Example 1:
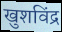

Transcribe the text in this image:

खुशविंद्र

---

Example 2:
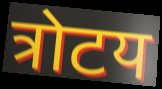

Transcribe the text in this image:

त्रोटय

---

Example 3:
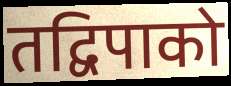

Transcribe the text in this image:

तद्विपाको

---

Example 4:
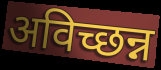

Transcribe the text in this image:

अविच्छन्न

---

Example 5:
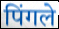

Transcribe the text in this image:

पिंगले